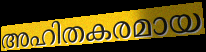
അഹിതകരമായ